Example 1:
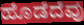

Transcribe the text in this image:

ಹೊಡೆದೆವು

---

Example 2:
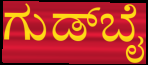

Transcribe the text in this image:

ಗುಡ್‌ಬೈ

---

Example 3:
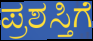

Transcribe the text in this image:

ಪ್ರಶಸ್ತಿಗೆ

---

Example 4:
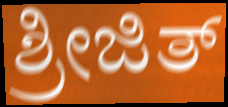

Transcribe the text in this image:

ಶ್ರೀಜಿತ್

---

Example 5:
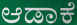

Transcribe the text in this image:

ಆಡಾಕೆ